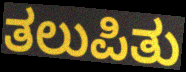
ತಲುಪಿತು